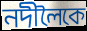
নদীলৈকে